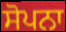
ਸੋਪਨਾ